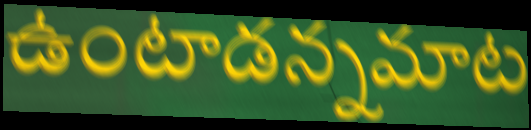
ఉంటాడన్నమాట